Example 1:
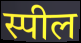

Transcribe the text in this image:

स्पील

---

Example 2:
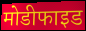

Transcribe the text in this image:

मोडीफाइड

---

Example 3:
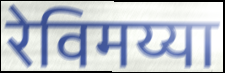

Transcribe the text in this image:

रेविमय्या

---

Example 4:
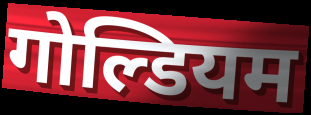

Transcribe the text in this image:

गोल्डियम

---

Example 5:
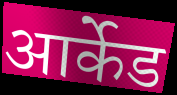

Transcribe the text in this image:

आर्केड